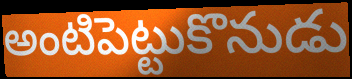
అంటిపెట్టుకొనుడు